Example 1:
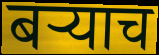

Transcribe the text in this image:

बर्‍याच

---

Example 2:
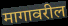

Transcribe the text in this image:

मागावरील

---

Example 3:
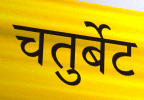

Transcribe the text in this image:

चतुर्बेट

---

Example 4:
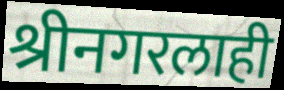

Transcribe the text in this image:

श्रीनगरलाही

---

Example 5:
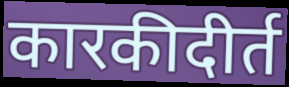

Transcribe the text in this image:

कारकीदीर्त